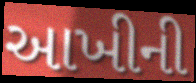
આખીની